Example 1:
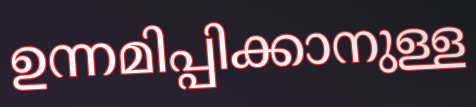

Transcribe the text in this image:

ഉന്നമിപ്പിക്കാനുള്ള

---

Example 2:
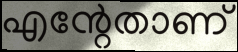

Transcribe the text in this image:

എന്റേതാണ്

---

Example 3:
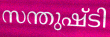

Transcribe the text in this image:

സന്തുഷ്ടി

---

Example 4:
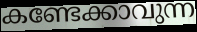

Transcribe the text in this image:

കണ്ടേക്കാവുന്ന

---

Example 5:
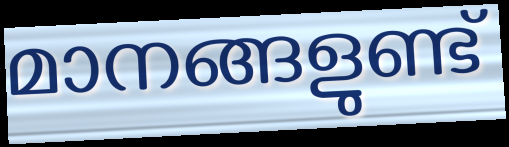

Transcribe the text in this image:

മാനങ്ങളുണ്ട്